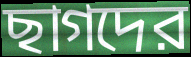
ছাগদের